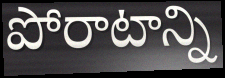
పోరాటాన్ని